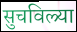
सुचविल्या